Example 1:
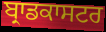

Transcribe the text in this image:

ਬ੍ਰਾਡਕਾਸਟਰ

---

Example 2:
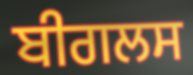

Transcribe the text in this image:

ਬੀਗਲਸ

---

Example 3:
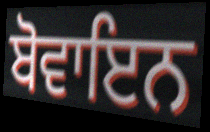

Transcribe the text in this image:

ਬੋਵਾਇਨ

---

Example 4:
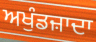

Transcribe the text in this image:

ਅਖੁੰਡਜ਼ਾਦਾ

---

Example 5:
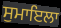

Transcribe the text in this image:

ਸੁਮਾਇਲਾ